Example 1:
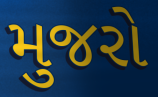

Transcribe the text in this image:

મુજરો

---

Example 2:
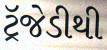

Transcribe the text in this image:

ટ્રૅજેડીથી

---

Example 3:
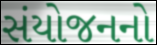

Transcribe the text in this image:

સંયોજનનો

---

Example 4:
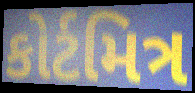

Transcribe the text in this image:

કોર્ટમિત્ર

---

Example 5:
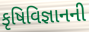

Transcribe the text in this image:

કૃષિવિજ્ઞાનની